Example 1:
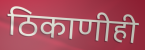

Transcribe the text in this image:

ठिकाणीही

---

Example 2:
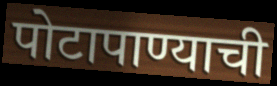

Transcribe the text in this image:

पोटापाण्याची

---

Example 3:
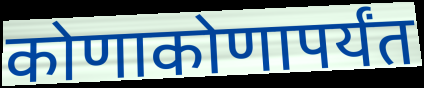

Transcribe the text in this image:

कोणाकोणापर्यंत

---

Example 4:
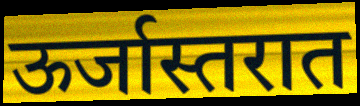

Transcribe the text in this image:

ऊर्जास्तरात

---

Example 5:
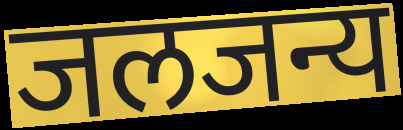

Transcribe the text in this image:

जलजन्य